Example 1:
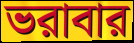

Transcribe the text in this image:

ভরাবার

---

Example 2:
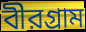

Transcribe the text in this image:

বীরগ্রাম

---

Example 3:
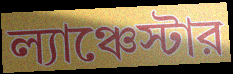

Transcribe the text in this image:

ল্যাঞ্চেস্টার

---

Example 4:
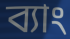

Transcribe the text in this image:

ব্যাং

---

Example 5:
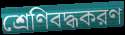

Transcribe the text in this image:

শ্রেণিবদ্ধকরণ